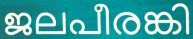
ജലപീരങ്കി